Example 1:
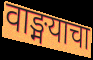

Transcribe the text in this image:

वाङ्मयाचा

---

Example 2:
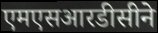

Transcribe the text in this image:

एमएसआरडीसीने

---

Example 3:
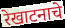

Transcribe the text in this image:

रेखाटनाचे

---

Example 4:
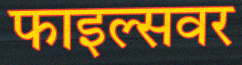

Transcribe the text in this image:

फाइल्सवर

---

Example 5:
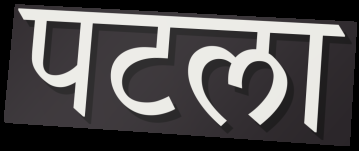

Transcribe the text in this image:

पटला